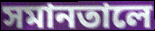
সমানতালে